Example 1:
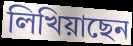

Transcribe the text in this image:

লিখিয়াছেন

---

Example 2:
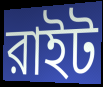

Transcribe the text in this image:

রাইট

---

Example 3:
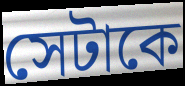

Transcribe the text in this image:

সেটাকে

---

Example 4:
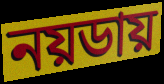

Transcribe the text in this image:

নয়ডায়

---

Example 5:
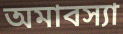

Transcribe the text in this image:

অমাবস্যা